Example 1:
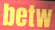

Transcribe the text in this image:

betw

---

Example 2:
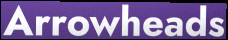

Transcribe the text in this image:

Arrowheads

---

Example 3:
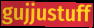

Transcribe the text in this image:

gujjustuff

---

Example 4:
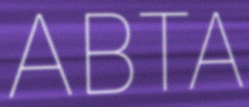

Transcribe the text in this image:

ABTA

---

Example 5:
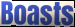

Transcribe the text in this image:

Boasts